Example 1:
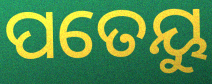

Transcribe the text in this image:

ପତେୟୁ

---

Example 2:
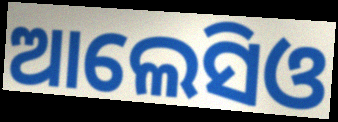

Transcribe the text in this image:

ଆଲେସିଓ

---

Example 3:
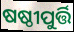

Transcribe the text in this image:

ଷଷ୍ଠୀପୁର୍ତ୍ତି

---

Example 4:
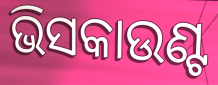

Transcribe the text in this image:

ଭିସକାଉଣ୍ଟ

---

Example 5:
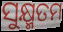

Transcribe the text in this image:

ସୁକ୍ଷ୍ମତମ